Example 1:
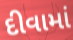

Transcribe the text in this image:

દીવામાં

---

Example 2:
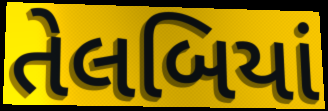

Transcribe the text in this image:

તેલબિયાં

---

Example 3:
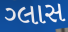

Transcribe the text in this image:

ગ્લાસ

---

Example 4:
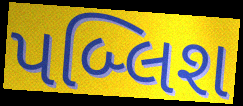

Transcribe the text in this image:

પબ્લિશ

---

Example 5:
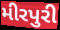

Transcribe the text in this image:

મીરપુરી